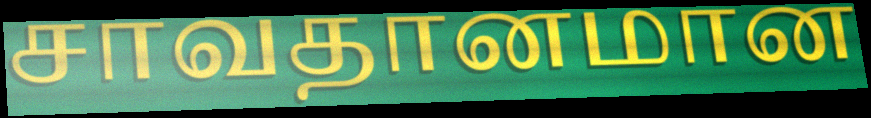
சாவதானமான